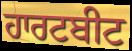
ਹਾਰਟਬੀਟ